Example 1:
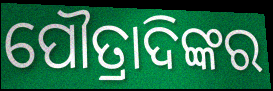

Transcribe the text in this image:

ପୌତ୍ରାଦିଙ୍କର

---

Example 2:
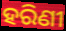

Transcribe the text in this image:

ହରିଣୀ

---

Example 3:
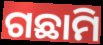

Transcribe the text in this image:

ଗଛାମି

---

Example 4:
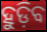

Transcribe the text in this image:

ହୁଡ଼ିବ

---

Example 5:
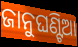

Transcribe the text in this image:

ଜାନୁଘଣ୍ଟିଆ